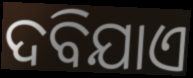
ଦବିଯାଏ